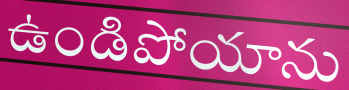
ఉండిపోయాను